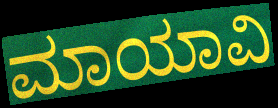
ಮಾಯಾವಿ